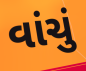
વાંચું